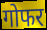
गोफर